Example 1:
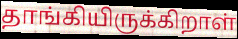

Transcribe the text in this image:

தாங்கியிருக்கிறாள்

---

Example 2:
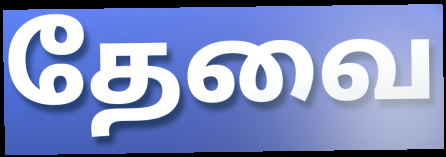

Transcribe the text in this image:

தேவை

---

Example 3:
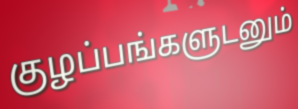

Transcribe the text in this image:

குழப்பங்களுடனும்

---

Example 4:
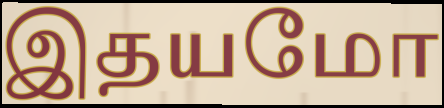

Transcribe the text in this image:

இதயமோ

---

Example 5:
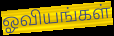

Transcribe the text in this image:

ஓவியங்கள்